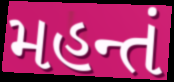
મહન્તં